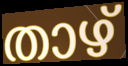
താഴ്